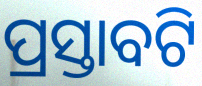
ପ୍ରସ୍ତାବଟି